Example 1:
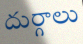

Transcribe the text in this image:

దుర్గాలు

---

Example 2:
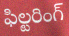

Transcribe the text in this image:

ఫిల్టరింగ్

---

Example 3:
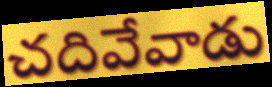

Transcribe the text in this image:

చదివేవాడు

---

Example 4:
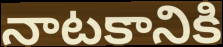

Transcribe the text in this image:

నాటకానికి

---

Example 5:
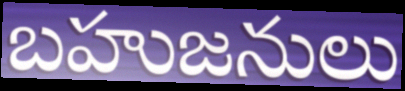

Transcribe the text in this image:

బహుజనులు